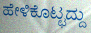
ಹೇಳಿಕೊಟ್ಟದ್ದು